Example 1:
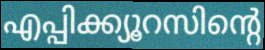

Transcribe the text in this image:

എപ്പിക്ക്യൂറസിന്റെ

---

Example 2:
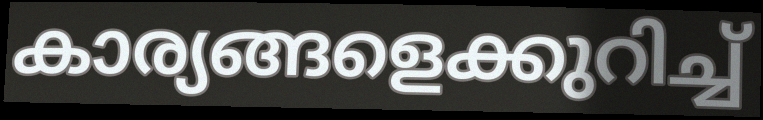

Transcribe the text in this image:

കാര്യങ്ങളെക്കുറിച്ച്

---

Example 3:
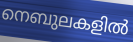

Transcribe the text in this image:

നെബുലകളിൽ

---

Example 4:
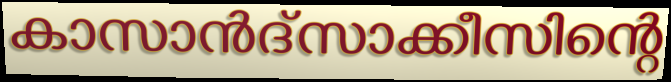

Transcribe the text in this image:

കാസാൻദ്സാക്കീസിന്റെ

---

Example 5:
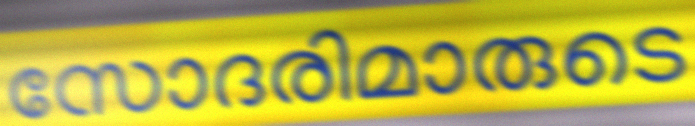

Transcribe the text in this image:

സോദരിമാരുടെ